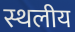
स्थलीय